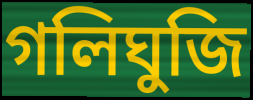
গলিঘুজি